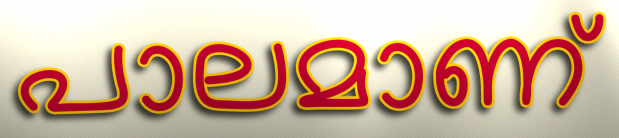
പാലമാണ്